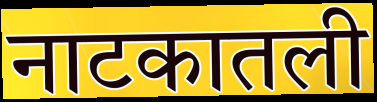
नाटकातली